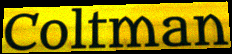
Coltman